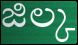
జిల్క